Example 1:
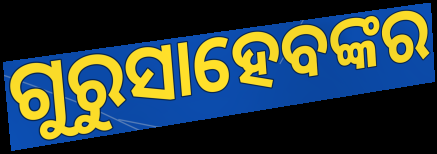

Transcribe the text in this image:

ଗୁରୁସାହେବଙ୍କର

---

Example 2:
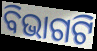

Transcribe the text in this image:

ବିଭାଗଟି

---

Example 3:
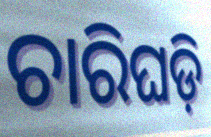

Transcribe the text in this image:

ଚାରିଘଡ଼ି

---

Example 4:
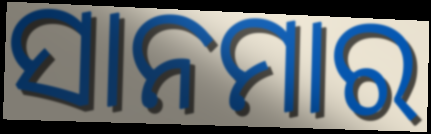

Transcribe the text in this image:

ସାନମାର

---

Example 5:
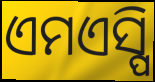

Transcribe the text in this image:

ଏମଏସ୍ପି